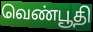
வெண்பூதி